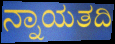
ನ್ನಾಯತದಿ